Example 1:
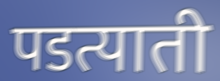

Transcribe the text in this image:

पडत्याती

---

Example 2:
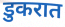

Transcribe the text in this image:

डुकरात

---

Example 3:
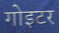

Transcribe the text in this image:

गोइटर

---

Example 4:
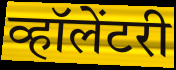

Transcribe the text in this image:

व्हॉलेंटरी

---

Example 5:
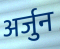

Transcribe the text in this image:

अर्जुन